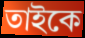
তাইকে